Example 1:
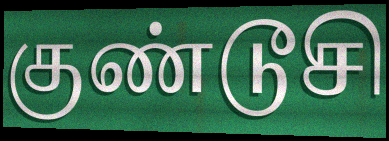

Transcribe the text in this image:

குண்டூசி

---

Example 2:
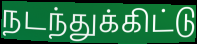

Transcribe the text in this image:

நடந்துக்கிட்டு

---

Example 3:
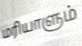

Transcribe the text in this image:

மரியாளும்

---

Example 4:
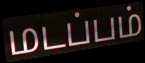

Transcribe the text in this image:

மடப்பம்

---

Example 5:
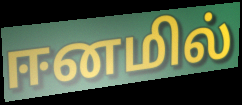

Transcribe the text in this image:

ஈனமில்